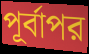
পূর্বাপর